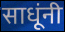
साधूंनी